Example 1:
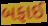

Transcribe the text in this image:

બફાઈ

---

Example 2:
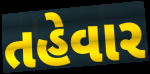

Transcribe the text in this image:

તહેવાર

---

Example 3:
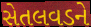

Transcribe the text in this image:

સેતલવડને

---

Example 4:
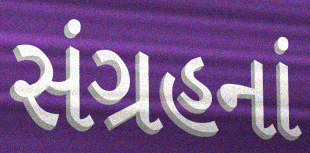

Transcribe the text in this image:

સંગ્રહનાં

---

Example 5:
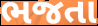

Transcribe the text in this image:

ભજતા